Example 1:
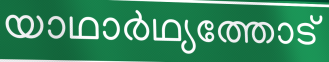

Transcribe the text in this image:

യാഥാർഥ്യത്തോട്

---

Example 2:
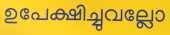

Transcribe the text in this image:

ഉപേക്ഷിച്ചുവല്ലോ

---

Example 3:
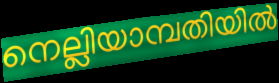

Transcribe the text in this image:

നെല്ലിയാമ്പതിയിൽ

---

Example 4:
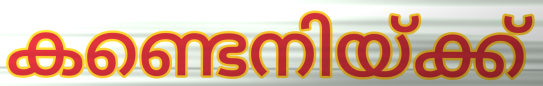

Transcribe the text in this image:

കണ്ടെനിയ്ക്ക്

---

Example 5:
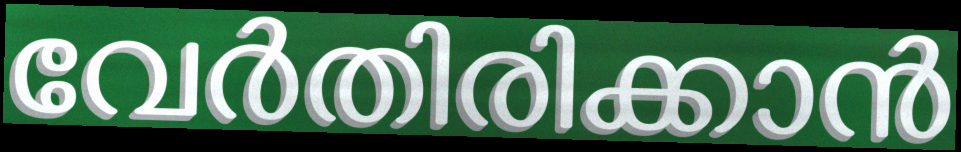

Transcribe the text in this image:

വേർതിരിക്കാൻ